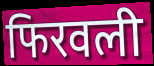
फिरवली